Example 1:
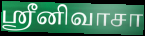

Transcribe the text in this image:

ஸ்ரீனிவாசா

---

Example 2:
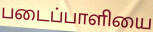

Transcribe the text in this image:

படைப்பாளியை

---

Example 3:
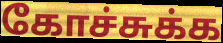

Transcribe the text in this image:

கோச்சுக்க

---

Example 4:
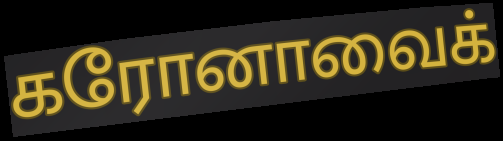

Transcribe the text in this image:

கரோனாவைக்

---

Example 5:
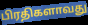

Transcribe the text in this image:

பிரதிகளாவது